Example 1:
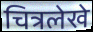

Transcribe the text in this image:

चित्रलेखे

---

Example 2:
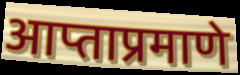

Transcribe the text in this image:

आप्ताप्रमाणे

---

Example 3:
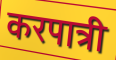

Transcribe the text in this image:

करपात्री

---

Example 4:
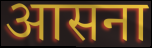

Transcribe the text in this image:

आसना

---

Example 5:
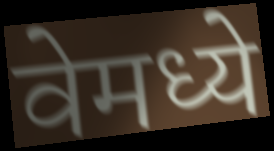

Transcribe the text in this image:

वेमध्ये